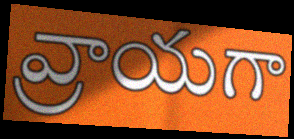
వ్రాయగా